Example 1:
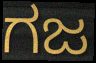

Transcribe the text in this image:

ಗಜ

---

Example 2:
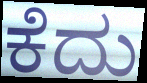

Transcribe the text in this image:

ಕೆದು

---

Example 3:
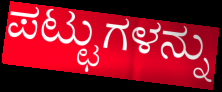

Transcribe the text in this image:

ಪಟ್ಟುಗಳನ್ನು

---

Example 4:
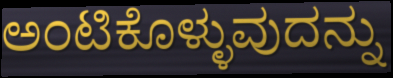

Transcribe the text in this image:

ಅಂಟಿಕೊಳ್ಳುವುದನ್ನು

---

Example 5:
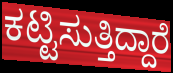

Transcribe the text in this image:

ಕಟ್ಟಿಸುತ್ತಿದ್ದಾರೆ